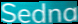
Sedna